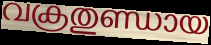
വക്രതുണ്ഡായ